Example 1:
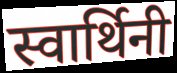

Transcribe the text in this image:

स्वार्थिनी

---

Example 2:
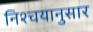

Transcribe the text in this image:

निश्चयानुसार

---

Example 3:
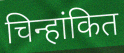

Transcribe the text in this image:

चिन्हांकित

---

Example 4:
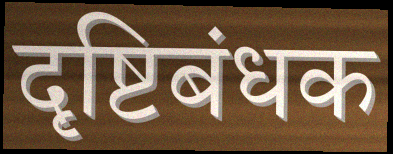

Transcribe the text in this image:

दृष्टिबंधक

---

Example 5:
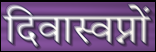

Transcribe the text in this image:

दिवास्वप्नों